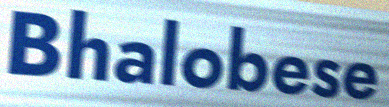
Bhalobese